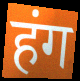
हंग